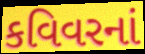
કવિવરનાં